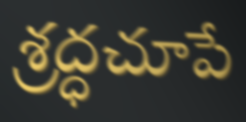
శ్రద్ధచూపే